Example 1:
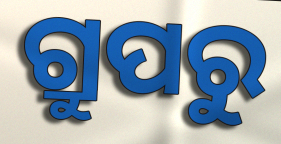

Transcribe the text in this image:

ଗ୍ରୁପରୁ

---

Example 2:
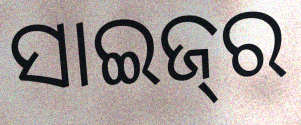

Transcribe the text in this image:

ସାଇଜ୍‌ର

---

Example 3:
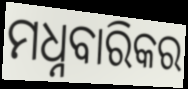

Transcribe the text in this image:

ମଧ୍ନବାରିକର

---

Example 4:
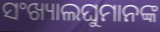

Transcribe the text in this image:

ସଂଖ୍ୟାଲଘୁମାନଙ୍କ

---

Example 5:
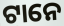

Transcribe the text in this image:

ଟାନେ